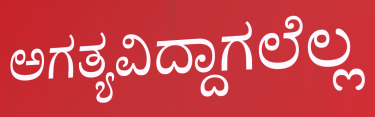
ಅಗತ್ಯವಿದ್ದಾಗಲೆಲ್ಲ